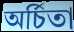
অৰ্চিতা